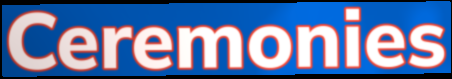
Ceremonies